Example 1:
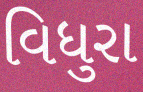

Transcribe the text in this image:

વિધુરા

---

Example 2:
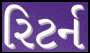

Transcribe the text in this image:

રિટર્ન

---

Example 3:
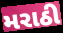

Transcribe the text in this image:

મરાઠી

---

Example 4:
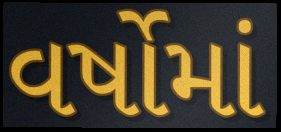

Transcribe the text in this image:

વર્ષોમાં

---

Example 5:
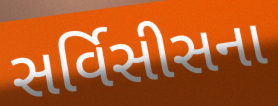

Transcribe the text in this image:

સર્વિસીસના